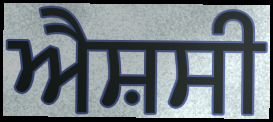
ਐਸ਼ਸੀ